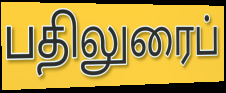
பதிலுரைப்